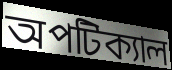
অপটিক্যাল